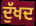
ਦੁੱਖਦ